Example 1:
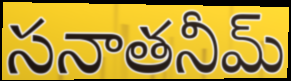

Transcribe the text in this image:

సనాతనీమ్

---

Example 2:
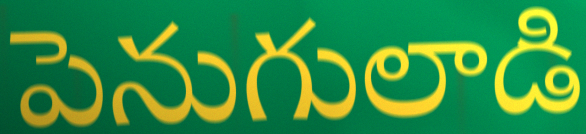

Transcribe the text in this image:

పెనుగులాడి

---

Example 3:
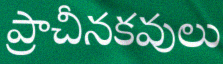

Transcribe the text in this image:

ప్రాచీనకవులు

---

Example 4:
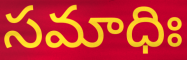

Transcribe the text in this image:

సమాధిః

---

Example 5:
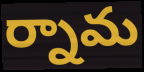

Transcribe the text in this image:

ర్నామ